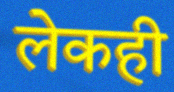
लेकही